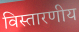
विस्तारणीय